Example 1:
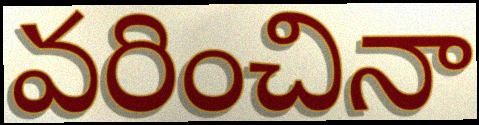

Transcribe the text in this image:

వరించినా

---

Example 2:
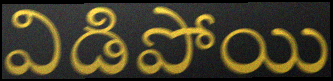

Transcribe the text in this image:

విడిపోయి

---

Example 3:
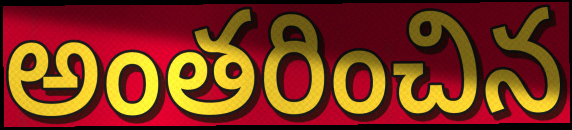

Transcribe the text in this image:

అంతరించిన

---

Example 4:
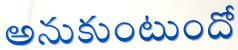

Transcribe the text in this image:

అనుకుంటుందో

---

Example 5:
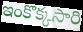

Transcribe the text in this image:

ఇంకొక్కసారి